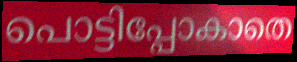
പൊട്ടിപ്പോകാതെ